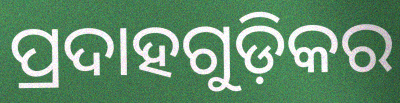
ପ୍ରଦାହଗୁଡ଼ିକର